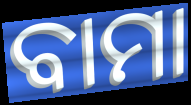
ବାମା